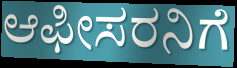
ಆಫೀಸರನಿಗೆ